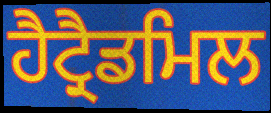
ਹੈਟ੍ਰੈਡਮਿਲ